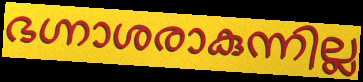
ഭഗ്നാശരാകുന്നില്ല